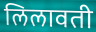
लिलावती